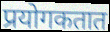
प्रयोगकतात